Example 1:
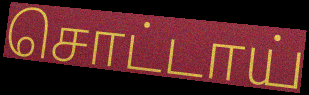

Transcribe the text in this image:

சொட்டாய்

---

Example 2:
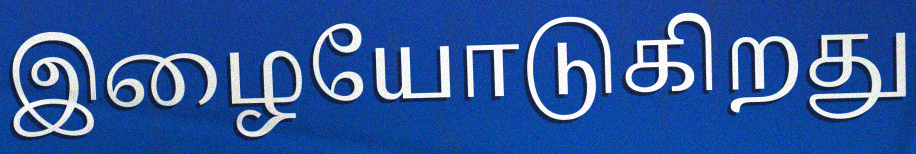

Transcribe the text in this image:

இழையோடுகிறது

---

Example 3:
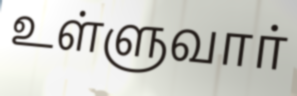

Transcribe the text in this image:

உள்ளுவார்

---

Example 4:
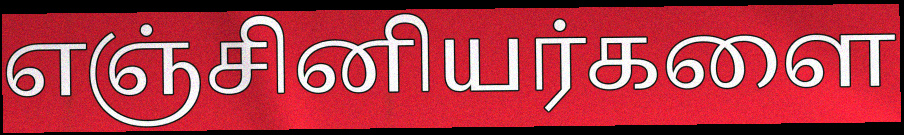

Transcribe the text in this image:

எஞ்சினியர்களை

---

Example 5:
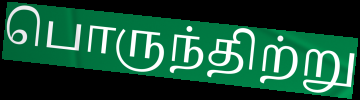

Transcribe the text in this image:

பொருந்திற்று